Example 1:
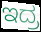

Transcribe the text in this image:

ಇದ್ರ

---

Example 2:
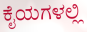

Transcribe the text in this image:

ಕೈಯಗಳಲ್ಲಿ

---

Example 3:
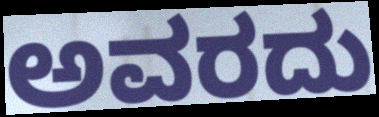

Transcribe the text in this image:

ಅವರದು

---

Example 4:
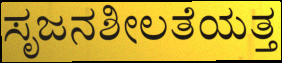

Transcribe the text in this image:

ಸೃಜನಶೀಲತೆಯತ್ತ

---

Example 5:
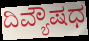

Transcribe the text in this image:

ದಿವ್ಯೌಷಧ